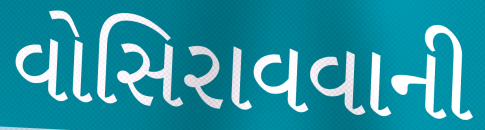
વોસિરાવવાની